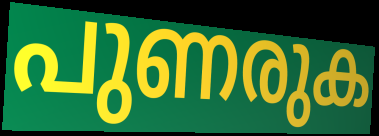
പുണരുക